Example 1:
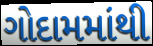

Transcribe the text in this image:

ગોદામમાંથી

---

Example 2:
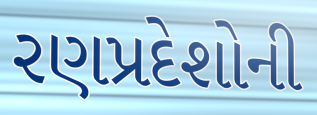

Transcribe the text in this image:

રણપ્રદેશોની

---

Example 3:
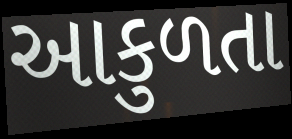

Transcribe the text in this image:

આકુળતા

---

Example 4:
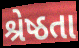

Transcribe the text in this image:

શ્રેષ્ઠતા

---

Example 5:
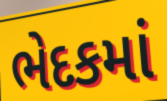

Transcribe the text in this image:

ભેદકમાં